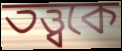
তত্ত্বকে